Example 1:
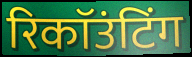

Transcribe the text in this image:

रिकॉउंटिंग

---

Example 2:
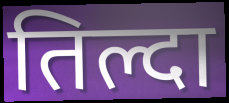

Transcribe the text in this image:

तिल्दा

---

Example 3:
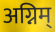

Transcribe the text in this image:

अग्निम्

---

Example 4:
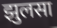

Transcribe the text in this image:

झुलसा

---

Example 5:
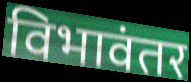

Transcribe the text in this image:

विभावंतर